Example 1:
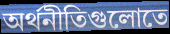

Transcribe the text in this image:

অর্থনীতিগুলোতে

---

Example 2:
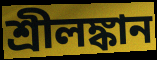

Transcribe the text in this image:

শ্রীলঙ্কান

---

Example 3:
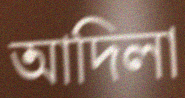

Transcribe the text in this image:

আদিলা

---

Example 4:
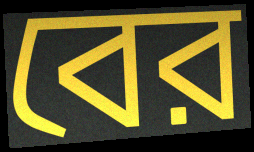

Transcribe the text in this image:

বের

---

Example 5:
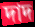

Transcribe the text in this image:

দাদ